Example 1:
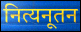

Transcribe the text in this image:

नित्यनूतन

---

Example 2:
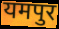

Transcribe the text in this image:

यमपुर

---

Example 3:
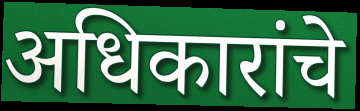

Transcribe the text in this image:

अधिकारांचे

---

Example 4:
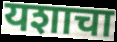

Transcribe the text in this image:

यशाचा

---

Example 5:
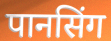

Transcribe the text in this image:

पानसिंग